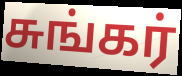
சுங்கர்